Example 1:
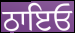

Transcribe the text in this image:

ਠਾਇਓ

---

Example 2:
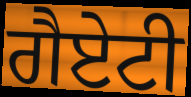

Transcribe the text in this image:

ਗੈਏਟੀ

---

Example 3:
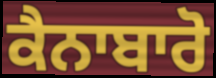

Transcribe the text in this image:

ਕੈਨਾਬਾਰੋ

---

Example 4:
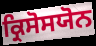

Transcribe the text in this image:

ਕ੍ਰਿਸੋਸਯੋਨ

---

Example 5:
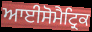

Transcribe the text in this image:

ਆਈਸੋਮੈਟ੍ਰਿਕ